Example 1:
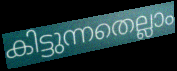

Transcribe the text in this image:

കിട്ടുന്നതെല്ലാം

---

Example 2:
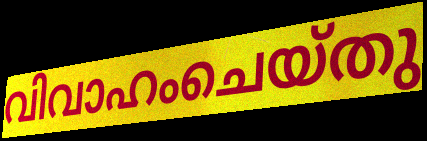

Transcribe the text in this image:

വിവാഹംചെയ്തു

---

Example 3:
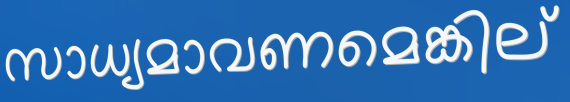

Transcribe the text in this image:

സാധ്യമാവണമെങ്കില്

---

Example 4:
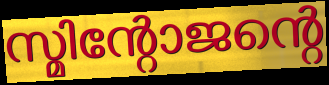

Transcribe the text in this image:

സ്മിന്റോജന്റെ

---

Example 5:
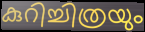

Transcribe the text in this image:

കുറിച്ചിത്രയും